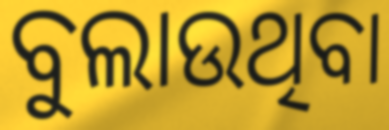
ବୁଲାଉଥିବା